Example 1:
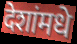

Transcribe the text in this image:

देशांमधे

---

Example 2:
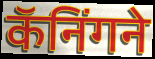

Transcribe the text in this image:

कॅनिंगने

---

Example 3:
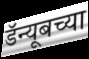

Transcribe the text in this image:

डॅन्यूबच्या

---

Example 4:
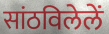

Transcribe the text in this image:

सांठविलेलें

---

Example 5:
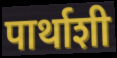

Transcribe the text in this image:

पार्थाशी